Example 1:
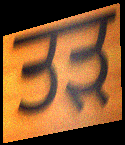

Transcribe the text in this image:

ਤੜ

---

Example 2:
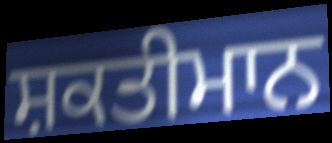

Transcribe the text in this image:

ਸ਼ਕਤੀਮਾਨ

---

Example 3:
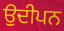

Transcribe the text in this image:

ਉਦੀਪਨ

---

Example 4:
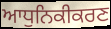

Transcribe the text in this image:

ਆਧੁਨਿਕੀਕਰਣ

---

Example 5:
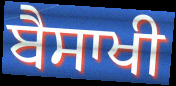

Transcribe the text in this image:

ਬੈਸਾਖੀ